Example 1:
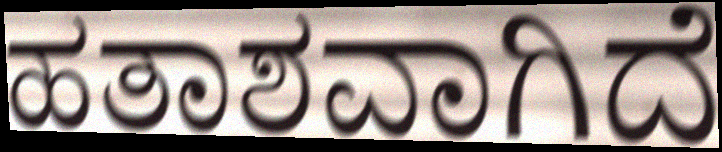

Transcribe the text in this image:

ಹತಾಶವಾಗಿದೆ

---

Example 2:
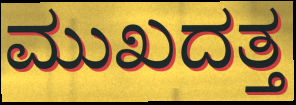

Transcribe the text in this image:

ಮುಖದತ್ತ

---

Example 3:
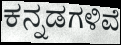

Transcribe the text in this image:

ಕನ್ನಡಗಳಿವೆ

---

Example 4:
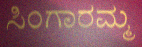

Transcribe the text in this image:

ಸಿಂಗಾರಮ್ಮ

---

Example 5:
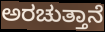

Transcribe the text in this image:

ಅರಚುತ್ತಾನೆ